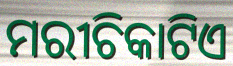
ମରୀଚିକାଟିଏ